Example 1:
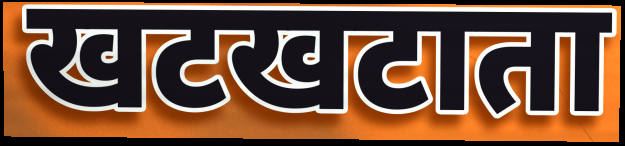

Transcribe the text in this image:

खटखटाता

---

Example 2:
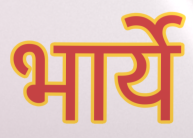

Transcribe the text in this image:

भार्ये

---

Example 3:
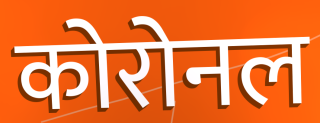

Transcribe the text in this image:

कोरोनल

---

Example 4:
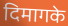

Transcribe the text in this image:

दिमागके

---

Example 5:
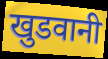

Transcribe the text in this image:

खुडवानी